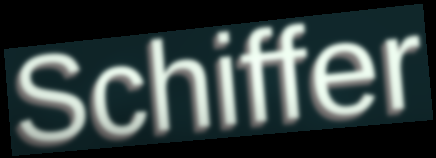
Schiffer